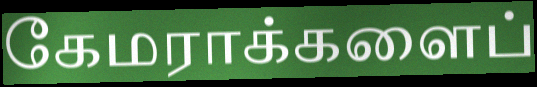
கேமராக்களைப்